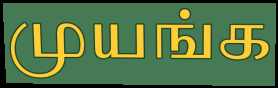
முயங்க